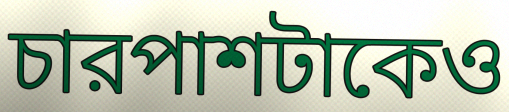
চারপাশটাকেও